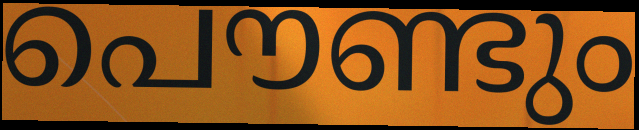
പൌണ്ടും